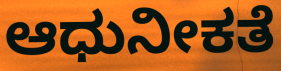
ಆಧುನೀಕತೆ